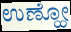
ಉಣ್ಹೋ